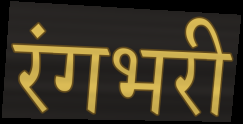
रंगभरी